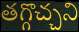
తగ్గొచ్చని